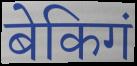
बेकिगं